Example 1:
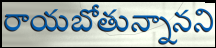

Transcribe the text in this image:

రాయబోతున్నానని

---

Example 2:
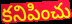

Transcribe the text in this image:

కనిపించు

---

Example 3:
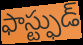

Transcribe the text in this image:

ఫాస్ట్ఫుడ్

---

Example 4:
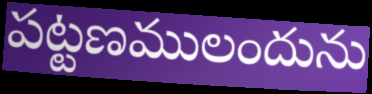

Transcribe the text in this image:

పట్టణములందును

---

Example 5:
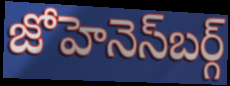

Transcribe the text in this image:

జోహెనెస్‍బర్గ్